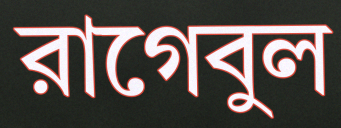
রাগেবুল